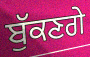
ਬੁੱਕਣਗੇ